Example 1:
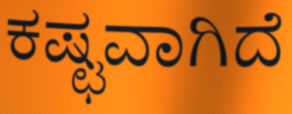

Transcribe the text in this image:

ಕಷ್ಟವಾಗಿದೆ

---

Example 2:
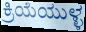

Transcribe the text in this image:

ಕ್ರಿಯೆಯುಳ್ಳ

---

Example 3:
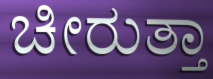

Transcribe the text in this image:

ಚೀರುತ್ತಾ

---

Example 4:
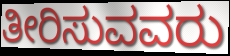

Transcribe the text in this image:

ತೀರಿಸುವವರು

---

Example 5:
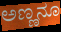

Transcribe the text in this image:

ಅಣ್ಣನೂ